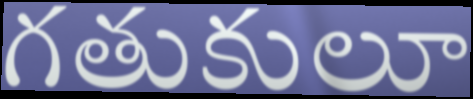
గతుకులూ